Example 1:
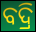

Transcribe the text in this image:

ବଦ୍ରି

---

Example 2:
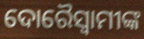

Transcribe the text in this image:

ଦୋରୈସ୍ବାମୀଙ୍କ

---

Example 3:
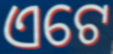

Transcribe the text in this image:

ଏଟେ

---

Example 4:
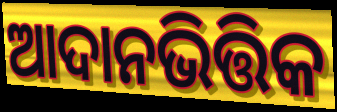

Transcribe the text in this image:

ଆଦାନଭିତ୍ତିକ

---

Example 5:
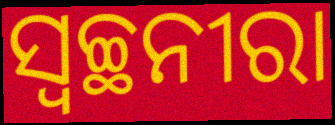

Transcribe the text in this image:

ସ୍ୱଚ୍ଛନୀରା